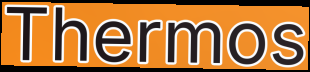
Thermos